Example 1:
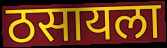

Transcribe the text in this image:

ठसायला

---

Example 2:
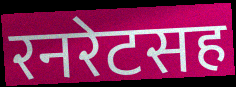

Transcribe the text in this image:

रनरेटसह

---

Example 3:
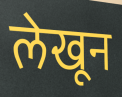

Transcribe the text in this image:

लेखून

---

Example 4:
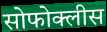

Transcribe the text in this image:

सोफोक्लीस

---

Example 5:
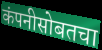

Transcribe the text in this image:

कंपनीसोबतचा